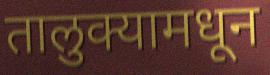
तालुक्यामधून